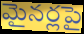
మైనర్లపై